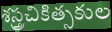
శస్త్రచికిత్సకుల